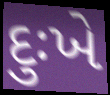
દુઃખે